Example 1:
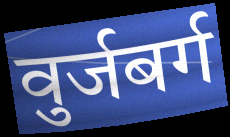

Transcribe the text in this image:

वुर्जबर्ग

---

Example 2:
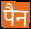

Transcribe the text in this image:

पैन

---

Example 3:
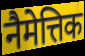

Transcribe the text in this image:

नैमेत्तिक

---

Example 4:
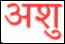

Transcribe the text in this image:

अशु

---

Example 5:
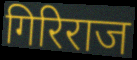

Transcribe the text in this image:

गिरिराज